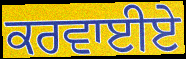
ਕਰਵਾਈਏ